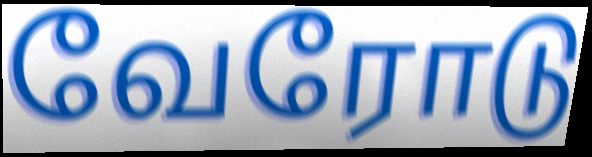
வேரோடு